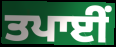
ਤਪਾਈਂ